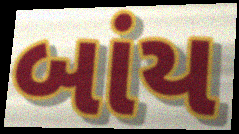
બાંય